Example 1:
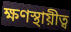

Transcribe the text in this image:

ক্ষণস্থায়ীত্ব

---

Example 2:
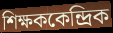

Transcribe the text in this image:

শিক্ষককেন্দ্রিক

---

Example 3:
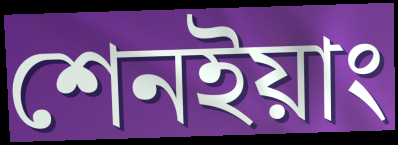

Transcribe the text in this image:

শেনইয়াং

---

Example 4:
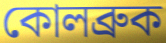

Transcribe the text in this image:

কোলব্রুক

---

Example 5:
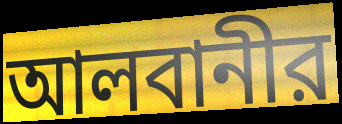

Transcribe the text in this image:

আলবানীর